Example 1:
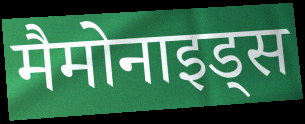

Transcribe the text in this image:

मैमोनाइड्स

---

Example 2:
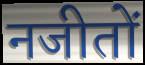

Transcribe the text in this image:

नजीतों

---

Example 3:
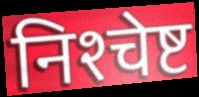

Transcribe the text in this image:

निश्चेष्ट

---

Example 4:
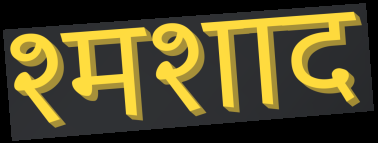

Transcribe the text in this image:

श्मशाद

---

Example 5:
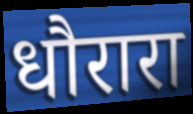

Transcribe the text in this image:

धौरारा